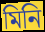
মিনি